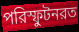
পরিস্ফুটনরত